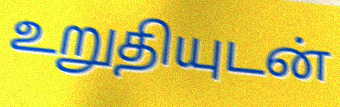
உறுதியுடன்